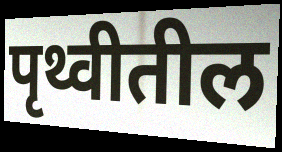
पृथ्वीतील